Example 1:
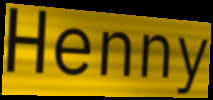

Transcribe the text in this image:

Henny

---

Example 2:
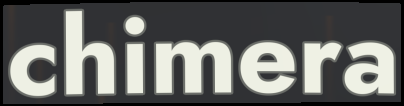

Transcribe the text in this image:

chimera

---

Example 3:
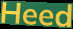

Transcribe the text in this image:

Heed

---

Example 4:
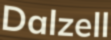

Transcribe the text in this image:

Dalzell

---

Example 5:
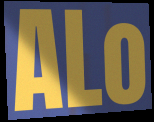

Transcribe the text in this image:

ALo